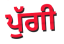
ਪੁੱਗੀ